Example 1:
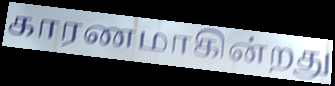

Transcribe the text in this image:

காரணமாகின்றது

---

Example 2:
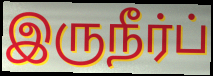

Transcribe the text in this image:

இருநீர்ப்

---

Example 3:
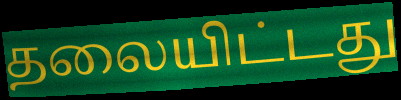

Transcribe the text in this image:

தலையிட்டது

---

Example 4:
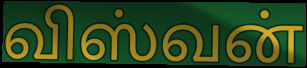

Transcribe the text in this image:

விஸ்வன்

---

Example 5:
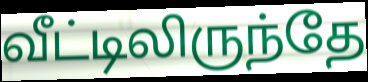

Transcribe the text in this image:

வீட்டிலிருந்தே